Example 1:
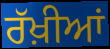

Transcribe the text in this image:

ਰੱਖ਼ੀਆਂ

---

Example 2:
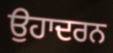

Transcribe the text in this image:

ਉਹਾਦਰਨ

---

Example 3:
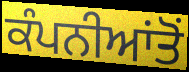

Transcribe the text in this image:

ਕੰਪਨੀਆਂਤੋਂ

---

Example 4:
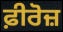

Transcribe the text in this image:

ਫ਼ੀਰੋਜ਼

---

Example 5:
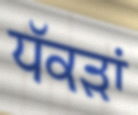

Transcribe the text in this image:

ਧੱਕੜਾਂ